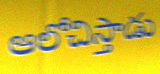
ఆలోచిస్తాడు